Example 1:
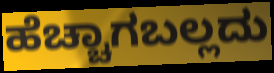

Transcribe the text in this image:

ಹೆಚ್ಚಾಗಬಲ್ಲದು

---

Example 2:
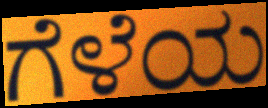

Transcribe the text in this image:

ಗೆಳೆಯ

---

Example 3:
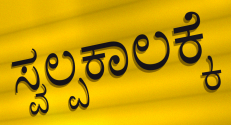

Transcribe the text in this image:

ಸ್ವಲ್ಪಕಾಲಕ್ಕೆ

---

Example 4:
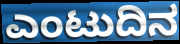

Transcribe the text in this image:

ಎಂಟುದಿನ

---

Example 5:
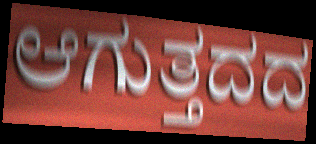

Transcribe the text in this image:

ಆಗುತ್ತದದ